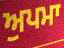
ਅੁਪਮਾ